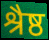
श्रैष्ठ